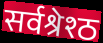
सर्वश्रेश्ठ